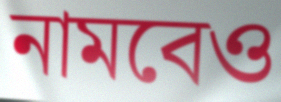
নামবেও